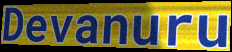
Devanuru